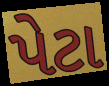
પેટા